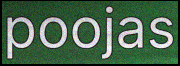
poojas